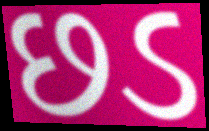
છડ